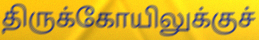
திருக்கோயிலுக்குச்